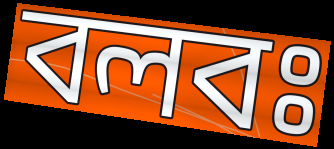
বলবঃ